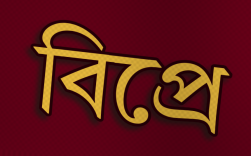
বিপ্রে